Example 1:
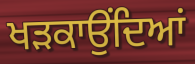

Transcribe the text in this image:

ਖੜਕਾਉਂਦਿਆਂ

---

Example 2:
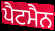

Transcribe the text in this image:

ਪੈਟਮੈਨ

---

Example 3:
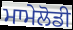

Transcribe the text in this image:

ਮਾਮੇਲੋਡੀ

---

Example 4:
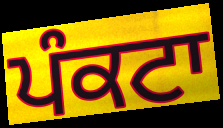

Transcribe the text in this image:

ਪੰਕਟਾ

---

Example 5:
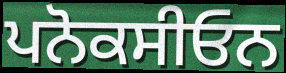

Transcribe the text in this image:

ਪਨੋਕਸੀਓਨ